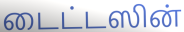
டைட்டஸின்